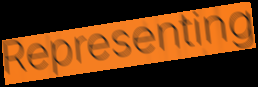
Representing